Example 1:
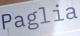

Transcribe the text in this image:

Paglia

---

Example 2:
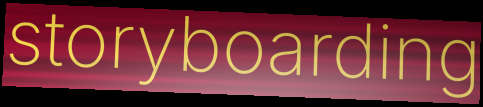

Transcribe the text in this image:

storyboarding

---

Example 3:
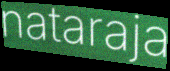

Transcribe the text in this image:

nataraja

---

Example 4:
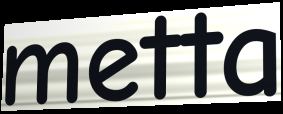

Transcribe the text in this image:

metta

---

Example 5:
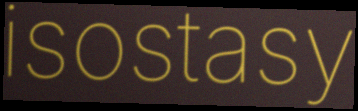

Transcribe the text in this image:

isostasy